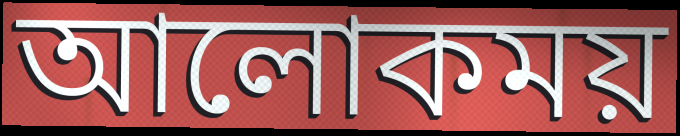
আলোকময়